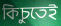
কিচুতেই